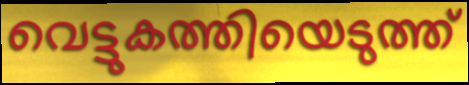
വെട്ടുകത്തിയെടുത്ത്